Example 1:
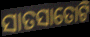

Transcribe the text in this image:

ସାତସାତୋଟି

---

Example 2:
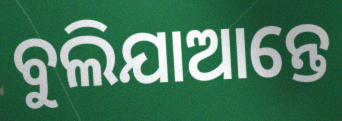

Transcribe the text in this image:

ବୁଲିଯାଆନ୍ତେ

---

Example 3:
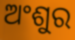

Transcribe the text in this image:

ଅଂଶୁର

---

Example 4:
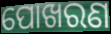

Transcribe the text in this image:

ପୋଖରଣ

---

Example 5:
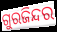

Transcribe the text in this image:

ଗୁରଜିନ୍ଦର